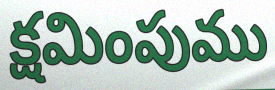
క్షమింపుము